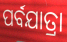
ପର୍ବଯାତ୍ରା